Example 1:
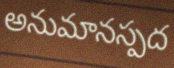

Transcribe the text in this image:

అనుమానస్పద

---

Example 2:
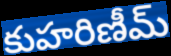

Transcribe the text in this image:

కుహరిణీమ్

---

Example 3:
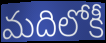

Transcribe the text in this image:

మదిలోకీ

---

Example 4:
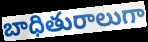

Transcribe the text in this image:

బాధితురాలుగా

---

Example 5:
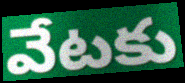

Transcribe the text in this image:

వేటకు